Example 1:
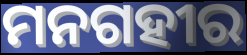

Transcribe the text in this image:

ମନଗହୀର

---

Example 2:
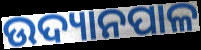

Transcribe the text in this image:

ଉଦ୍ୟାନପାଳ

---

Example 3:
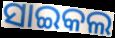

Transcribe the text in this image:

ସାଇକଲ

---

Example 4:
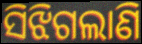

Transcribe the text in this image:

ସିଝିଗଲାଣି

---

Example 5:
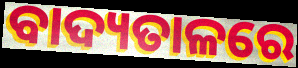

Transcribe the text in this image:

ବାଦ୍ୟତାଳରେ